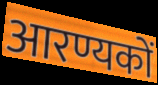
आरण्यकों